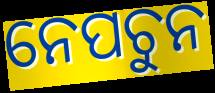
ନେପଚୁନ